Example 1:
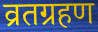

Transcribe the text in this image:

व्रतग्रहण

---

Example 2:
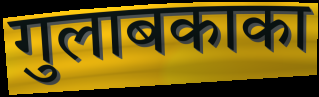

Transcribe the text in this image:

गुलाबकाका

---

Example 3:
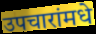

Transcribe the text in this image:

उपचारांमधे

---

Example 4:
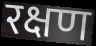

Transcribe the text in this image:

रक्षण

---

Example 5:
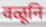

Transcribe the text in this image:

वळूनि